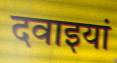
दवाइयां